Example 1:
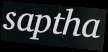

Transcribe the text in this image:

saptha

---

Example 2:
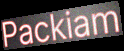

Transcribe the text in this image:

Packiam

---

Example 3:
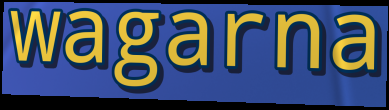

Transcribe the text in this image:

wagarna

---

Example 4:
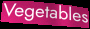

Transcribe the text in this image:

Vegetables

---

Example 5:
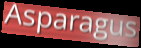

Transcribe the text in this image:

Asparagus